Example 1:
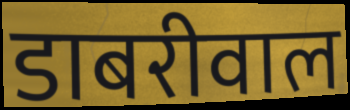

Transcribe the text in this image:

डाबरीवाल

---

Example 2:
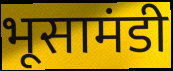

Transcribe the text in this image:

भूसामंडी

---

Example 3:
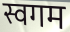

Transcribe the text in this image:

स्वगम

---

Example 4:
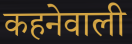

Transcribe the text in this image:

कहनेवाली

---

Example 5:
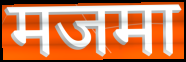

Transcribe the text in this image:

मजमा